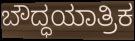
ಬೌದ್ಧಯಾತ್ರಿಕ